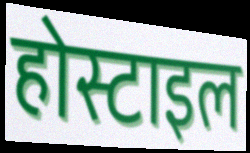
होस्टाइल